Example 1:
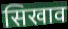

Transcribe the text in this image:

सिखाव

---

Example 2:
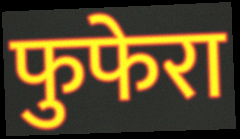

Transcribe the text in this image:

फुफेरा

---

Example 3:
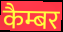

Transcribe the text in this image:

कैम्बर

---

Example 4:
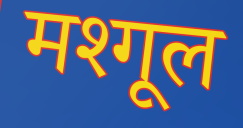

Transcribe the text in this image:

मश्गूल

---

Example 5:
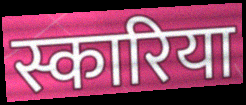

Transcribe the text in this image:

स्कारिया